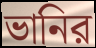
ভানির